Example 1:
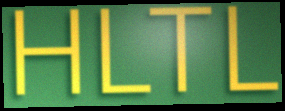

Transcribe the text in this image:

HLTL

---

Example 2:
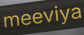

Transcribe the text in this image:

meeviya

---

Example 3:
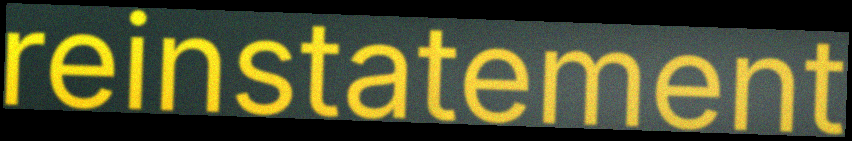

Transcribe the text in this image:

reinstatement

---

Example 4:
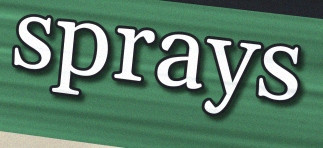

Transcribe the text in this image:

sprays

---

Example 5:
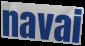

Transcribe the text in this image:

navai